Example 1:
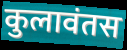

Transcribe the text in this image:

कुलावंतस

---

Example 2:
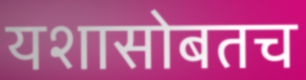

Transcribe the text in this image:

यशासोबतच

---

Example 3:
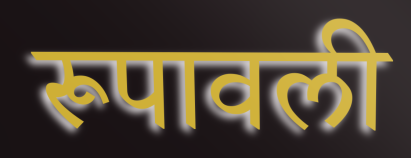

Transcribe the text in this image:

रूपावली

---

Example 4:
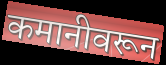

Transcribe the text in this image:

कमानीवरून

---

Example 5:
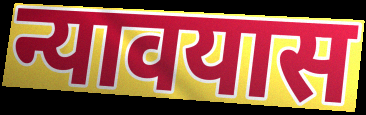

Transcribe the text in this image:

न्यावयास